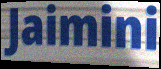
Jaimini